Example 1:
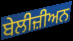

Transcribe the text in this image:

ਬੇਲੀਜ਼ੀਅਨ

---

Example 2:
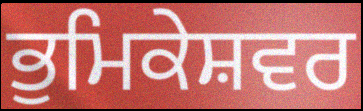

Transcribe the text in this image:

ਭੁਮਿਕੇਸ਼ਵਰ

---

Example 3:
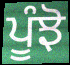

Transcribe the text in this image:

ਪੂੰਝੋ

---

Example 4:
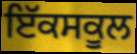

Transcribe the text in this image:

ਇੱਕਸਕੂਲ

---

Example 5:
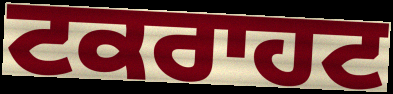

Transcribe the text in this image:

ਟਕਰਾਹਟ